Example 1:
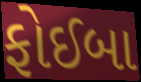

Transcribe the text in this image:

ફોઈબા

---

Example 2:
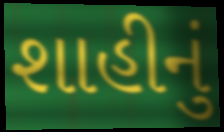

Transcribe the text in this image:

શાહીનું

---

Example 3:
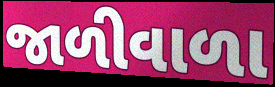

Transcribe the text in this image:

જાળીવાળા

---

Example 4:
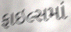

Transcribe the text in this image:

ફાઇલ્સમાં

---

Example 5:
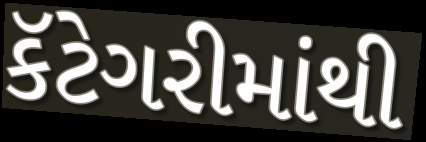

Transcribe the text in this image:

કૅટેગરીમાંથી